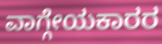
ವಾಗ್ಗೇಯಕಾರರ